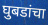
घुबडांचा